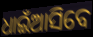
ଧାଇଁଆସିବେ